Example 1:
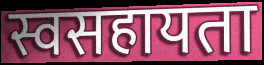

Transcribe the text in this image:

स्‍वसहायता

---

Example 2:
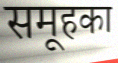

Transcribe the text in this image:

समूहका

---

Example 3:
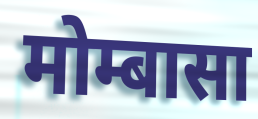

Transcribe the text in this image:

मोम्बासा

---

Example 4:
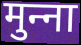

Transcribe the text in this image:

मुन्ना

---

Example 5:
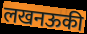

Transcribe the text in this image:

लखनऊकी